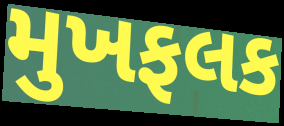
મુખફલક